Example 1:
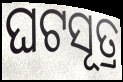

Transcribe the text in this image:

ଘଟସୂତ୍ର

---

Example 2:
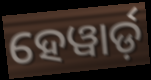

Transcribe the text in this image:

ହେୱାର୍ଡ଼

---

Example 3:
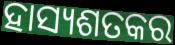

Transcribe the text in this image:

ହାସ୍ୟଶତକର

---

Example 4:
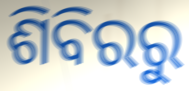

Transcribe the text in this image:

ଶିବିରରୁ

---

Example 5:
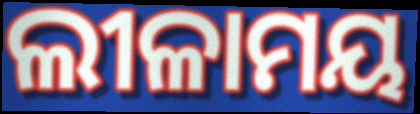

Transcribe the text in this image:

ଲୀଳାମୟ